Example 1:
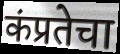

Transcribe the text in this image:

कंप्रतेचा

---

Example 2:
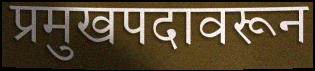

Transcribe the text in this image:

प्रमुखपदावरून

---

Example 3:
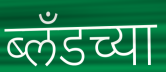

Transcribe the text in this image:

ब्लँडच्या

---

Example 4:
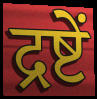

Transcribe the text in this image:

द्रष्टें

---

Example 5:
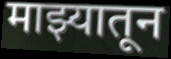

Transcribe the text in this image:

माझ्यातून